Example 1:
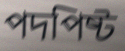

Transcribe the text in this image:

পদপিষ্ট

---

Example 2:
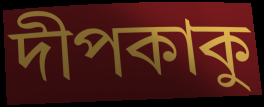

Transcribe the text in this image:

দীপকাকু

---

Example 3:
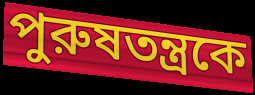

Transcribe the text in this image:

পুরুষতন্ত্রকে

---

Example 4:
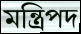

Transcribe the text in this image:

মন্ত্রিপদ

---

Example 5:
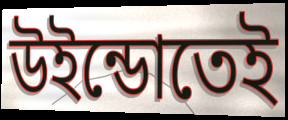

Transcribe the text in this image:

উইন্ডোতেই